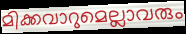
മിക്കവാറുമെല്ലാവരും